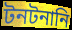
টনটনানি